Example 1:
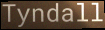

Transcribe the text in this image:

Tyndall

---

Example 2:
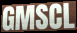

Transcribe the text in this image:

GMSCL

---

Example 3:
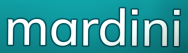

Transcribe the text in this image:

mardini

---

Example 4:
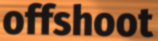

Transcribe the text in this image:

offshoot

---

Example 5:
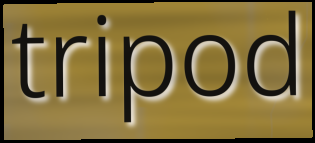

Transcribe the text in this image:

tripod